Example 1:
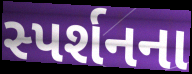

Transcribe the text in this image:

સ્પર્શનના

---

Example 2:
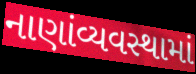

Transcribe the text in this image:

નાણાંવ્યવસ્થામાં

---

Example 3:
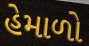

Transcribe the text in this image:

હેમાળો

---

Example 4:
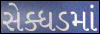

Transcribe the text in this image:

સેક્ધડમાં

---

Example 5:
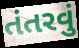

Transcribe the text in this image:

તંતરવું